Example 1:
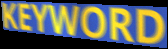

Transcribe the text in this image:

KEYWORD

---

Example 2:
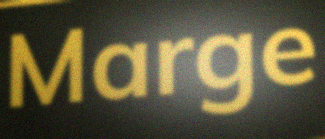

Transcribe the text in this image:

Marge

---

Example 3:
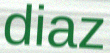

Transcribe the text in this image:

diaz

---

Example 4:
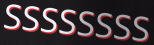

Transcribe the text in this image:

SSSSSSSS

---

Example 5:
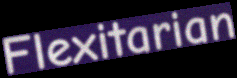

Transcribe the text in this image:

Flexitarian